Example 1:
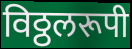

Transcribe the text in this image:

विठ्ठलरूपी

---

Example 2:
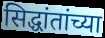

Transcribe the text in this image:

सिद्धांतांच्या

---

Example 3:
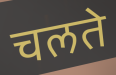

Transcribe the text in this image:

चलते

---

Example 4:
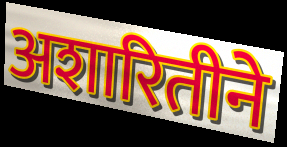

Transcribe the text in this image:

अशारितीने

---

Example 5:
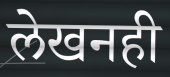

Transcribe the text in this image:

लेखनही